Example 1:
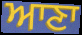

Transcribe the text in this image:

ਆਣਾ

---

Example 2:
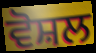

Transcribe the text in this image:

ਵੋਸ਼ਲ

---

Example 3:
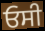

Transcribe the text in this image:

ਓਸੀ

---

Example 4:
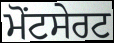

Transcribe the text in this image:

ਮੋਂਟਸੇਰਟ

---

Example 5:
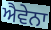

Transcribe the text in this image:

ਐਵੇਨਾ